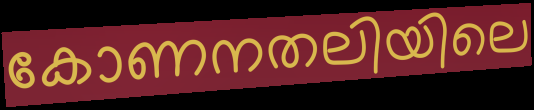
കോണനതലിയിലെ